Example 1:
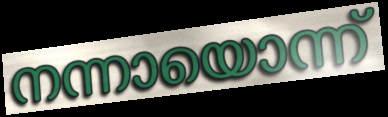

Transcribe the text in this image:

നന്നായൊന്ന്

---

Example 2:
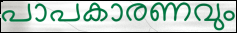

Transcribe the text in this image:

പാപകാരണവും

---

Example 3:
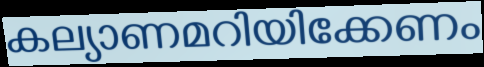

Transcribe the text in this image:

കല്യാണമറിയിക്കേണം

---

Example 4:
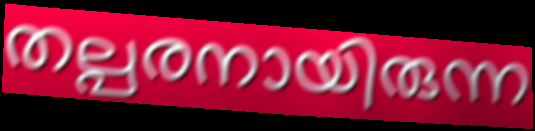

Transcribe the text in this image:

തല്പരനായിരുന്ന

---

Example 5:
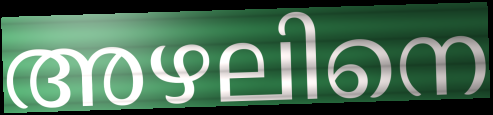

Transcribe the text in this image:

അഴലിനെ